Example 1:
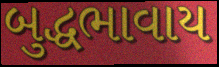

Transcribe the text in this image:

બુદ્ધભાવાય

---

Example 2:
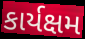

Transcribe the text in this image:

કાર્યક્ષમ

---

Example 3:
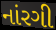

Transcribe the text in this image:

નાંરગી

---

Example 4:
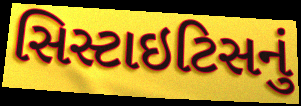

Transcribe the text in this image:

સિસ્ટાઇટિસનું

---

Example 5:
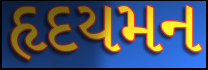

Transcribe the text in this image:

હૃદયમન